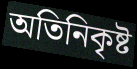
অতিনিকৃষ্ট